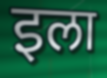
इला